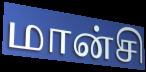
மான்சி